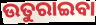
ଉତୁରାଇବା